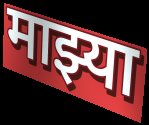
माझ्या